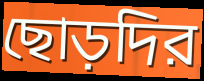
ছোড়দির